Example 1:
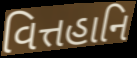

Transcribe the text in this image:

વિત્તહાનિ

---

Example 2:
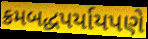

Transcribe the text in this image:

ક્રમબદ્ધપર્યાયપણે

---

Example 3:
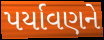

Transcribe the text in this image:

પર્યાવણને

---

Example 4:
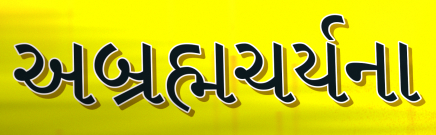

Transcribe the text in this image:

અબ્રહ્મચર્યના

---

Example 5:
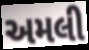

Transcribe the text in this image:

અમલી